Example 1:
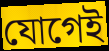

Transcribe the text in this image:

যোগেই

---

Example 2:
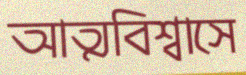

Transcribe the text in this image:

আত্মবিশ্বাসে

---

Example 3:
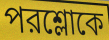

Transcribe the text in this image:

পরশ্লোকে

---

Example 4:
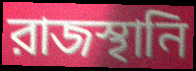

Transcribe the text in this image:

রাজস্থানি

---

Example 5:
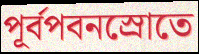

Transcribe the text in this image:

পূর্বপবনস্রোতে